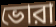
ভোরা